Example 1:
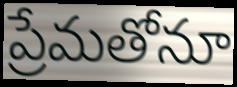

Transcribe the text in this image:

ప్రేమతోనూ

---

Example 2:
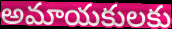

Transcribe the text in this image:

అమాయకులకు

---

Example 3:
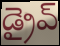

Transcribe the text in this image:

డ్రైవ్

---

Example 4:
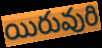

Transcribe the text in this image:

యిరువురి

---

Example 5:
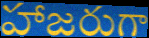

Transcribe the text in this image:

హాజరుగా